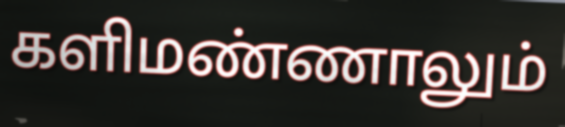
களிமண்ணாலும்